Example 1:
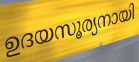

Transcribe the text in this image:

ഉദയസൂര്യനായി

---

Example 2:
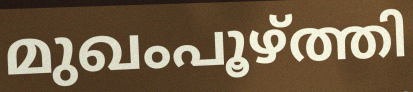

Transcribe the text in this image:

മുഖംപൂഴ്ത്തി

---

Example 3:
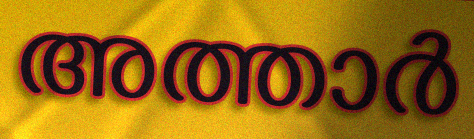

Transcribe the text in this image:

അത്താർ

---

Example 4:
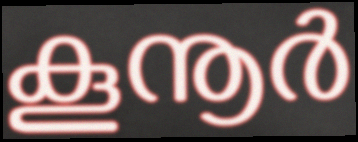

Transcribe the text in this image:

കൂനൂർ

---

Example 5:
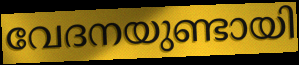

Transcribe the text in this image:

വേദനയുണ്ടായി